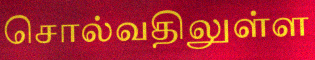
சொல்வதிலுள்ள